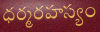
ధర్మరహస్యం